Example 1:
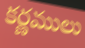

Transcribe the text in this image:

కర్ణములు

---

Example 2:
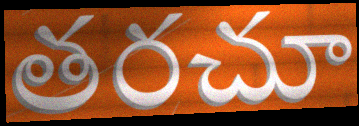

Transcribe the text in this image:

తరచూ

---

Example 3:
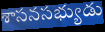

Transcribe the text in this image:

శాసనసభ్యుడు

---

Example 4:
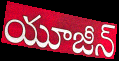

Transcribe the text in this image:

యూజీన్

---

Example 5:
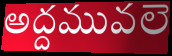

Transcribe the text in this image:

అద్దమువలె